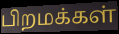
பிறமக்கள்